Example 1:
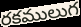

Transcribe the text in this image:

రకములుగ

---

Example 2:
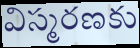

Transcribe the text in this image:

విస్మరణకు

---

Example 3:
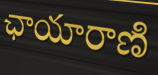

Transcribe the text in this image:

ఛాయారాణి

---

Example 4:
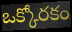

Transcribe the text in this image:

ఒక్కోరకం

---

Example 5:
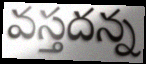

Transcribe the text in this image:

వస్తదన్న